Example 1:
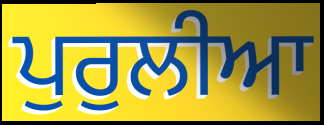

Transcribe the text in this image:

ਪੁਰੁਲੀਆ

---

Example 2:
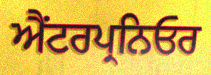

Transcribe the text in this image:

ਐਂਟਰਪ੍ਰਨਿਓਰ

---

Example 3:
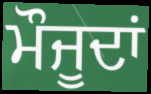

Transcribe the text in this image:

ਮੌਜੂਦਾਂ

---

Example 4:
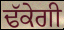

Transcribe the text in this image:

ਢੱਕੇਗੀ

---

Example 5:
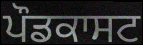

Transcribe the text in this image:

ਪੌਡਕਾਸਟ